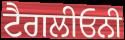
ਟੈਗਲੀਓਨੀ